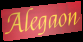
Alegaon